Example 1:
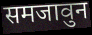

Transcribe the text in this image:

समजावुन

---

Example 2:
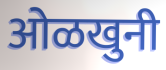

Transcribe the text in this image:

ओळखुनी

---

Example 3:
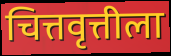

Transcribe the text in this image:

चित्तवृत्तीला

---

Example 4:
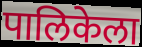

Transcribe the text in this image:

पालिकेला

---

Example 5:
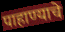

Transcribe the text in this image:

पाहाण्याचे